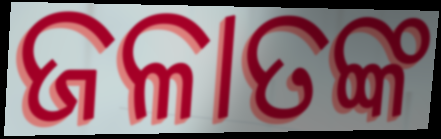
ଜଳାତଙ୍କ